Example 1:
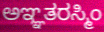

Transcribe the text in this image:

ಅಞ್ಞತರಸ್ಮಿಂ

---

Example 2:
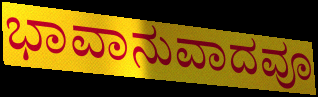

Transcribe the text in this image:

ಭಾವಾನುವಾದವೂ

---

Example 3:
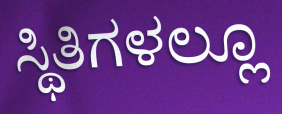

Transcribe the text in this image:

ಸ್ಥಿತಿಗಳಲ್ಲೂ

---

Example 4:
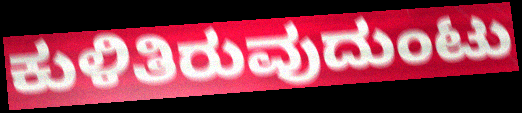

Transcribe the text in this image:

ಕುಳಿತಿರುವುದುಂಟು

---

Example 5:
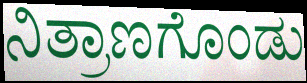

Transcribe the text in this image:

ನಿತ್ರಾಣಗೊಂಡು